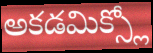
అకడమిక్స్లో